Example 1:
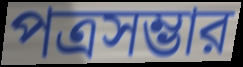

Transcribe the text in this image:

পত্রসম্ভার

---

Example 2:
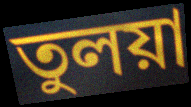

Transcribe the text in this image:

তুলয়া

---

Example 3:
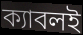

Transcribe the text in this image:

ক্যাবলই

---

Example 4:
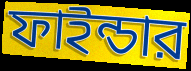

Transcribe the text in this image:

ফাইন্ডার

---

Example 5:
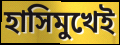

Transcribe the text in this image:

হাসিমুখেই